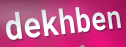
dekhben